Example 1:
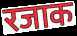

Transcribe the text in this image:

रजाक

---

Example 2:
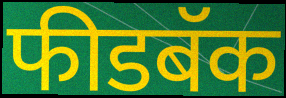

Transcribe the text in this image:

फीडबॅक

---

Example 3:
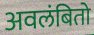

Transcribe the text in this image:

अवलंबितो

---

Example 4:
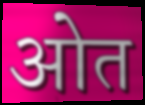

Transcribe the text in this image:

ओत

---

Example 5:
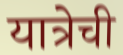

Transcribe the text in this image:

यात्रेची